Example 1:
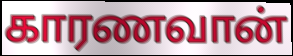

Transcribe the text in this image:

காரணவான்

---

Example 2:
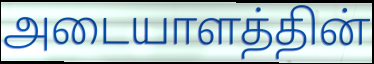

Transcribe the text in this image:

அடையாளத்தின்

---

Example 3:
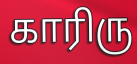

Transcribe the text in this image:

காரிரு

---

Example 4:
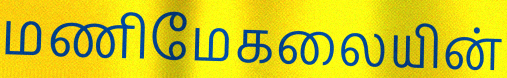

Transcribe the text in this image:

மணிமேகலையின்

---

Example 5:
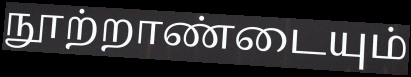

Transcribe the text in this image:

நூற்றாண்டையும்